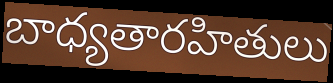
బాధ్యతారహితులు